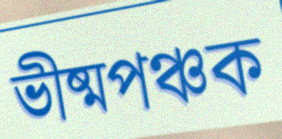
ভীষ্মপঞ্চক